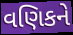
વણિકને